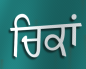
ਚਿਕਾਂ